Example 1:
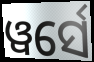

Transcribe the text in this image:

ୱର୍ସେ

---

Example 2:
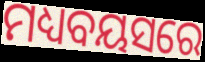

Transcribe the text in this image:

ମଧ୍ୟବୟସରେ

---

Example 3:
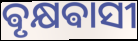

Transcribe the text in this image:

ଵୃକ୍ଷଵାସୀ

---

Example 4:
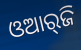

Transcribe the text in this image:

ଓଆର୍‌ଜି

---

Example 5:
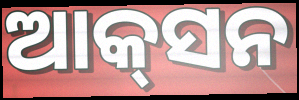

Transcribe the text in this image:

ଆକ୍‌ସନ